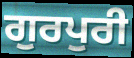
ਗੁਰਪੁਰੀ